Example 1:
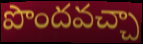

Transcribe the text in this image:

పొందవచ్చా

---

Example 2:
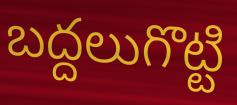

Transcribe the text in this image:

బద్దలుగొట్టి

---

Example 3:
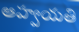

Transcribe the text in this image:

ఆహ్వయతి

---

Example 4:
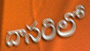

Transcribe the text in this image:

దాసరిలో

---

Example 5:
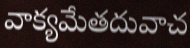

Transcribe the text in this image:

వాక్యమేతదువాచ